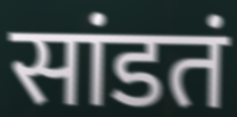
सांडतं